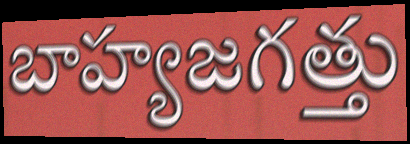
బాహ్యజగత్తు